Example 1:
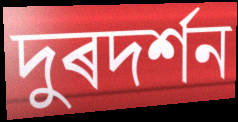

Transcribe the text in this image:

দুৰদৰ্শন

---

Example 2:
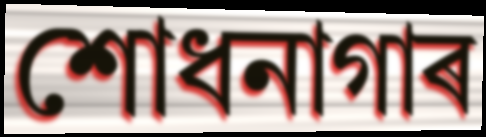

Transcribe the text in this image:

শোধনাগাৰ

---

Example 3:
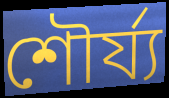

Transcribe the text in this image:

শৌৰ্য্য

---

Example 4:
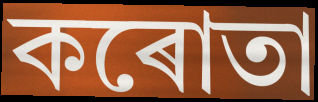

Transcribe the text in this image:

কৰোতা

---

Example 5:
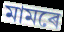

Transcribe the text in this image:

মামৰে